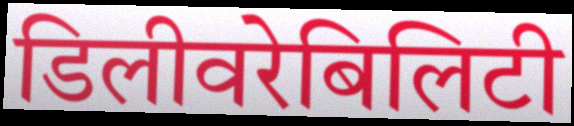
डिलीवरेबिलिटी